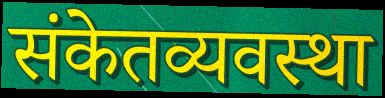
संकेतव्यवस्था